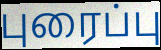
புரைப்பு